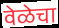
वेळेचा